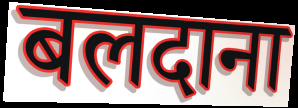
बलदाना